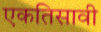
एकतिसावी